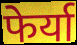
फेर्या